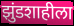
झुंडशाहीला